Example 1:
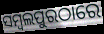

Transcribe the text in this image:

ସମ୍ବଲପୁରଠାରେ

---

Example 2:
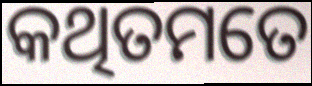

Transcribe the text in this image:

କଥିତମତେ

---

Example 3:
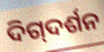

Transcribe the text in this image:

ଦିଗ୍‌ଦର୍ଶନ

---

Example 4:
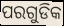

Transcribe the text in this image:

ପରଗୁଡିକ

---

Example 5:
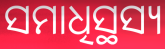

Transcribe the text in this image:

ସମାଧିସ୍ଥସ୍ୟ